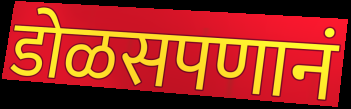
डोळसपणानं